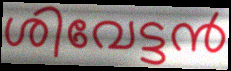
ശിവേട്ടൻ